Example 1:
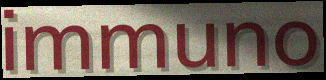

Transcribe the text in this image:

immuno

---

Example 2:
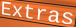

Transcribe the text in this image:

Extras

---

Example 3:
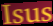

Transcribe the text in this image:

Isus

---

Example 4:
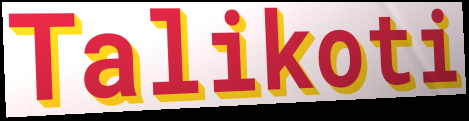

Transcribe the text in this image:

Talikoti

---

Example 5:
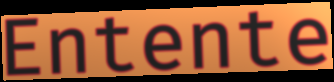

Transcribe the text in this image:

Entente